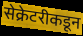
सेक्रेटरीकडून